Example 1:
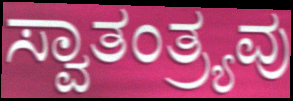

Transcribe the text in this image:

ಸ್ವಾತಂತ್ರ್ಯವು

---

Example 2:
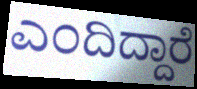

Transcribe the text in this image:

ಎಂದಿದ್ದಾರೆ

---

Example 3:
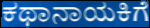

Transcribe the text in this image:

ಕಥಾನಾಯಕಿಗೆ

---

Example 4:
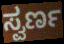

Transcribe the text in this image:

ಸ್ವರ್ಣ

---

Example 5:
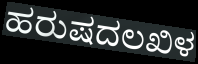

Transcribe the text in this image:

ಹರುಷದಲಖಿಳ